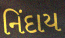
નિંદાય